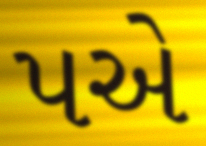
પએ